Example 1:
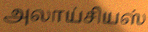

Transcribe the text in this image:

அலாய்சியஸ்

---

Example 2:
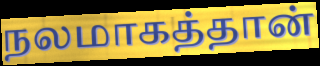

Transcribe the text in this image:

நலமாகத்தான்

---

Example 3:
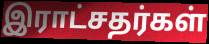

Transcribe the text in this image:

இராட்சதர்கள்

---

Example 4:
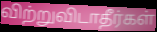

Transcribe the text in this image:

விற்றுவிடாதீர்கள்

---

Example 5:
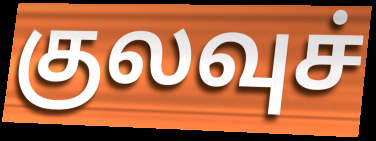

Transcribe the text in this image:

குலவுச்